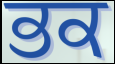
ਭਕ